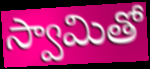
స్వామితో